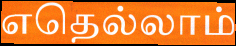
எதெல்லாம்